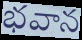
భవాన